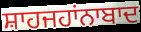
ਸ਼ਾਹਜਹਾਂਨਾਬਾਦ